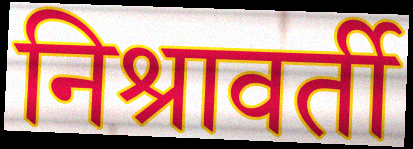
निश्रावर्ती